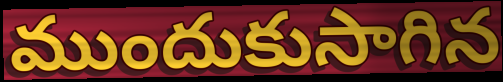
ముందుకుసాగిన